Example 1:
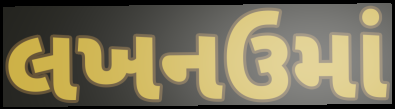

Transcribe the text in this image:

લખનઉમાં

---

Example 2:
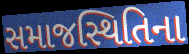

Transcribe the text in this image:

સમાજસ્થિતિના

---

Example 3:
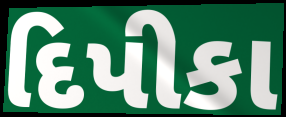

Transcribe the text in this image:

દિપીકા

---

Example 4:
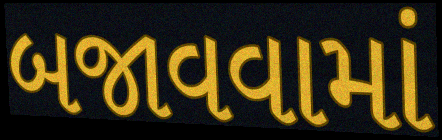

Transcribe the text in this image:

બજાવવામાં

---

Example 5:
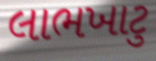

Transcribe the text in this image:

લાભખાટુ